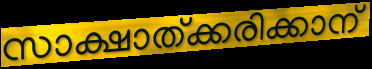
സാക്ഷാത്ക്കരിക്കാന്